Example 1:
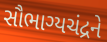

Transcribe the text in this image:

સૌભાગ્યચંદ્રને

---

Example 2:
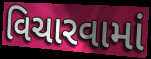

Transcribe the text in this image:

વિચારવામાં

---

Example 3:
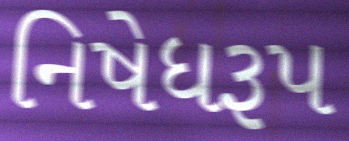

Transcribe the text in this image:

નિષેધરૂપ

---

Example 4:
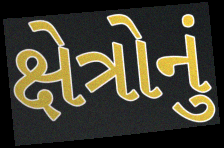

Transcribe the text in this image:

ક્ષેત્રોનું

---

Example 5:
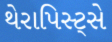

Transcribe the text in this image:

થેરાપિસ્ટ્સે